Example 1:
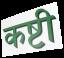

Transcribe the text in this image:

कष्टी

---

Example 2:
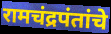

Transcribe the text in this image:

रामचंद्रपंतांचे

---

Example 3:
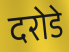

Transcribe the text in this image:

दरोडे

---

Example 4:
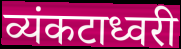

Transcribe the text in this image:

व्यंकटाध्वरी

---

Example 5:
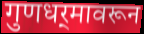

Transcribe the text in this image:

गुणधर्मावरून